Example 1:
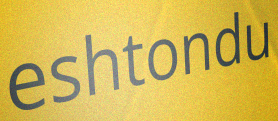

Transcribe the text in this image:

eshtondu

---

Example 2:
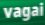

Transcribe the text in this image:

vagai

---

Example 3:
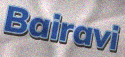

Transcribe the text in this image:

Bairavi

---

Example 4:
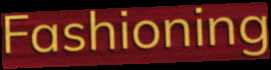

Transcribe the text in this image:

Fashioning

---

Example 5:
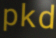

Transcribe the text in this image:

pkd